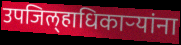
उपजिल्हाधिकाऱ्यांना